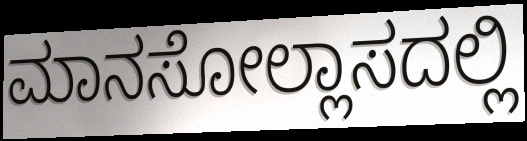
ಮಾನಸೋಲ್ಲಾಸದಲ್ಲಿ